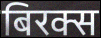
बिरक्स